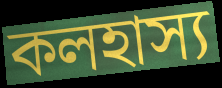
কলহাস্য